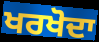
ਖਰਖੋਦਾ